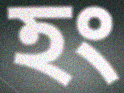
হং